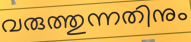
വരുത്തുന്നതിനും